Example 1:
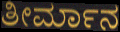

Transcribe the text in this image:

ತೀರ್ಮಾನ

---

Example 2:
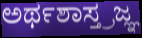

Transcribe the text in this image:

ಅರ್ಥಶಾಸ್ತ್ರಜ್ಞ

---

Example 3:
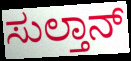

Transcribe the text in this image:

ಸುಲ್ತಾನ್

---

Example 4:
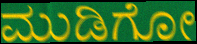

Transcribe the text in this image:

ಮುಡಿಗೋ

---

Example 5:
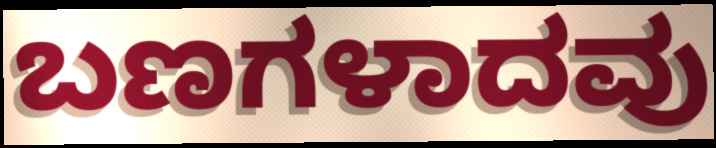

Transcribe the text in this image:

ಬಣಗಳಾದವು